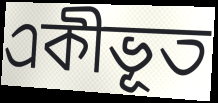
একীভূত